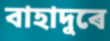
বাহাদুৰে